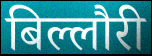
बिल्लौरी